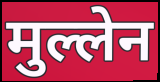
मुल्लेन